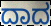
ದಾದ